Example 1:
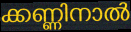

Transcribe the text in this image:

ക്കണ്ണിനാൽ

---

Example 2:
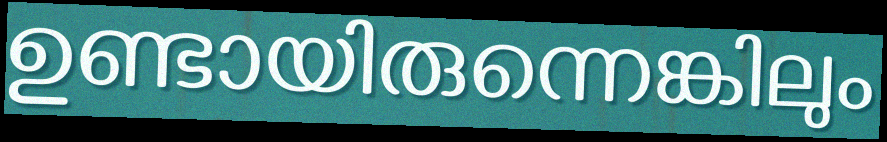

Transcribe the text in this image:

ഉണ്ടായിരുന്നെങ്കിലും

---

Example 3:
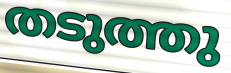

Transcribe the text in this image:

തടുത്തു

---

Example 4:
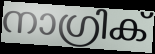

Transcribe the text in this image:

നാഗ്രിക്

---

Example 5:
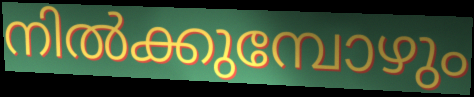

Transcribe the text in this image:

നിൽക്കുമ്പോഴും